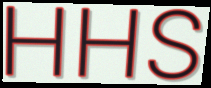
HHS